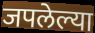
जपलेल्या